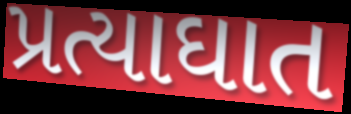
પ્રત્યાઘાત